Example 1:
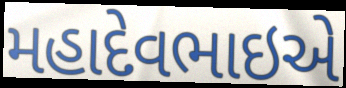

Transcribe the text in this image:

મહાદેવભાઇએ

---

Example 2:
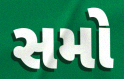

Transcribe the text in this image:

સમો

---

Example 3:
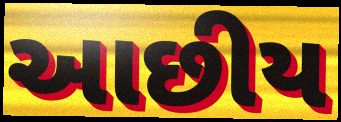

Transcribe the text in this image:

આછીય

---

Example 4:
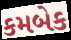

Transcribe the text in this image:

કમબેક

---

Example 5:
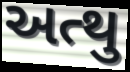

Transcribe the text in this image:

અત્થુ